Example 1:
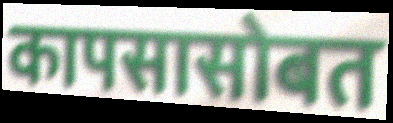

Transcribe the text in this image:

कापसासोबत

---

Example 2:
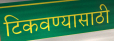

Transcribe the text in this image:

टिकवण्यासाठी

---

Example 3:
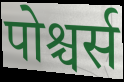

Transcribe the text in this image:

पोश्चर्स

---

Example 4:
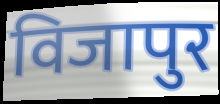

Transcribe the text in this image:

विजापुर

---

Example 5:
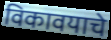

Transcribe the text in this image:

विकावयाचे